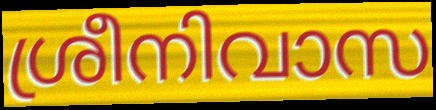
ശ്രീനിവാസ